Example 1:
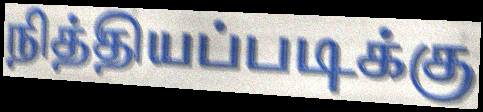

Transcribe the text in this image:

நித்தியப்படிக்கு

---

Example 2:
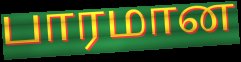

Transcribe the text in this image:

பாரமான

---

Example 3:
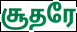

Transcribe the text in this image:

சூதரே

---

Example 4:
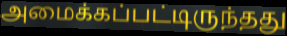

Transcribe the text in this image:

அமைக்கப்பட்டிருந்தது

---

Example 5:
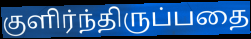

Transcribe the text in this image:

குளிர்ந்திருப்பதை